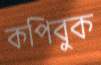
কপিবুক